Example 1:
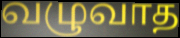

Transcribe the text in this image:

வழுவாத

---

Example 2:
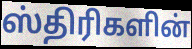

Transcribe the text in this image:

ஸ்திரிகளின்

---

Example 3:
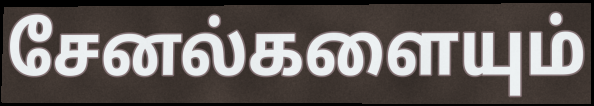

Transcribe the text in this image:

சேனல்களையும்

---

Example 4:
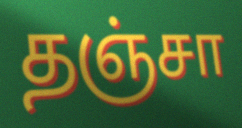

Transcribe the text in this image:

தஞ்சா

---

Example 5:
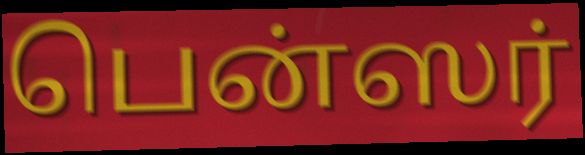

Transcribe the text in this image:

பென்ஸர்